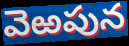
వెఱపున